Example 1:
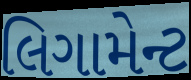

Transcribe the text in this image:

લિગામેન્ટ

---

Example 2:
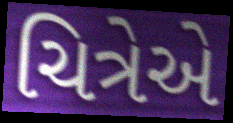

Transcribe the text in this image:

ચિત્રેએ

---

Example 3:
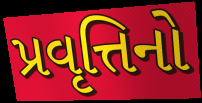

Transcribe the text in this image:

પ્રવૃત્તિનો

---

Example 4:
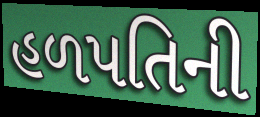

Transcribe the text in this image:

હળપતિની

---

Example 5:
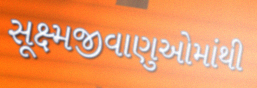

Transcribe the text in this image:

સૂક્ષ્મજીવાણુઓમાંથી